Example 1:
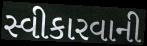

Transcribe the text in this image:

સ્વીકારવાની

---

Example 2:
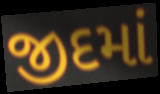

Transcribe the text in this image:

જીદમાં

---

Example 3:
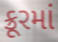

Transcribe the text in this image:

ક્રૂરમાં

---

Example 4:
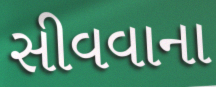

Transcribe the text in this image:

સીવવાના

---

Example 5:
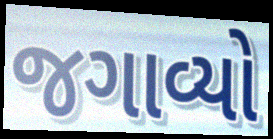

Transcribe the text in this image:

જગાવ્યો